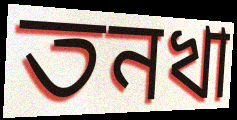
তনখা